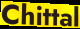
Chittal